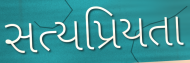
સત્યપ્રિયતા